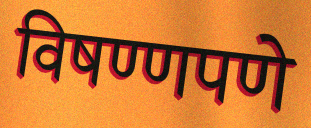
विषण्णपणे